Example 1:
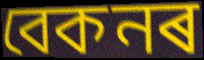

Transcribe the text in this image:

বেকনৰ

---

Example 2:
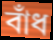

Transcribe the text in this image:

বাঁধ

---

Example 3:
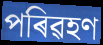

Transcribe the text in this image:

পৰিৱহণ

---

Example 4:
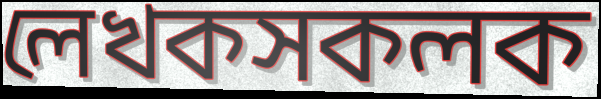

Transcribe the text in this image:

লেখকসকলক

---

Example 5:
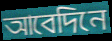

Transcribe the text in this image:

আবেদিনে